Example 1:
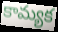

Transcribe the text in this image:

కామ్యక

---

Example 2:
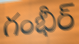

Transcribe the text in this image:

గంభీర్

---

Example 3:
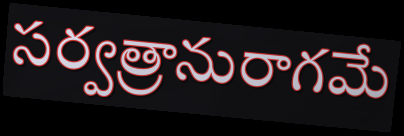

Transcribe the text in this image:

సర్వత్రానురాగమే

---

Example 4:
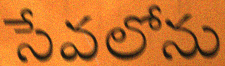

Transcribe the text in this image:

సేవలోను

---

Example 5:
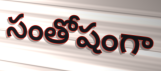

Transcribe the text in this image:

సంతోషంగా